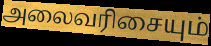
அலைவரிசையும்